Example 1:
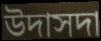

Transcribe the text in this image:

উদাসদা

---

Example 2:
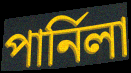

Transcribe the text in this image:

পার্নিলা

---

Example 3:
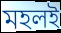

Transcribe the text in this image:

মহলই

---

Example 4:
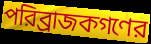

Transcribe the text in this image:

পরিব্রাজকগণের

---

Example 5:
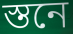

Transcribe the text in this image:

স্তনে